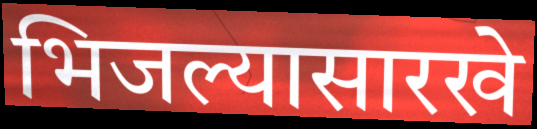
भिजल्यासारखे